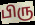
பிரு